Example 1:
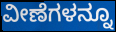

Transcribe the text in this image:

ವೀಣೆಗಳನ್ನೂ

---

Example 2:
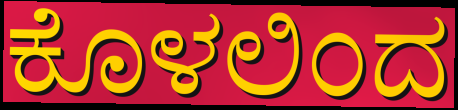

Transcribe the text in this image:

ಕೊಳಲಿಂದ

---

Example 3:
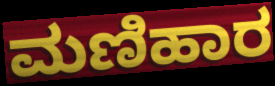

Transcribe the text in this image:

ಮಣಿಹಾರ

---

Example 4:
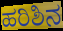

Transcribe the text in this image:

ಹರಿಶಿನ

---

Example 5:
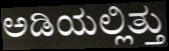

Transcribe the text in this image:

ಅಡಿಯಲ್ಲಿತ್ತು